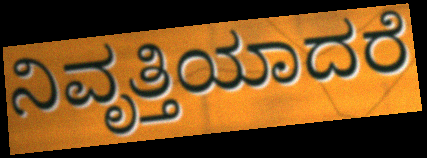
ನಿವೃತ್ತಿಯಾದರೆ